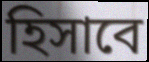
হিসাবে